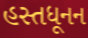
હસ્તધૂનન